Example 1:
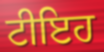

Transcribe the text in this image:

ਟੀਇਹ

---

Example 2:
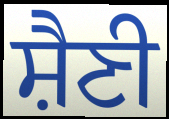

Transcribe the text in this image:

ਸ਼ੈਣੀ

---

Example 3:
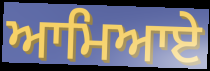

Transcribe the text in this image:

ਆਮਿਆਏ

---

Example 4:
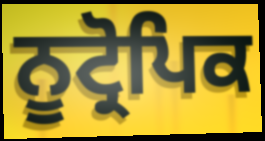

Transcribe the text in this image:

ਨੂਟ੍ਰੋਪਿਕ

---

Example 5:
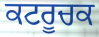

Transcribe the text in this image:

ਕਟਰੂਚਕ